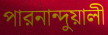
পারনান্দুয়ালী